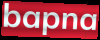
bapna